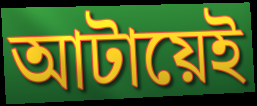
আটায়েই